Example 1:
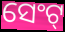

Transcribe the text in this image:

ସେଂଟ୍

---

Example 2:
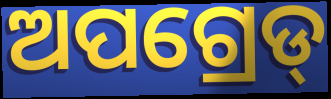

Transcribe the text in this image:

ଅପଗ୍ରେଡ୍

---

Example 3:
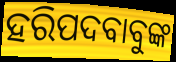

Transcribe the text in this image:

ହରିପଦବାବୁଙ୍କ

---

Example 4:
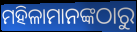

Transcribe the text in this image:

ମହିଳାମାନଙ୍କଠାରୁ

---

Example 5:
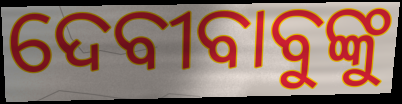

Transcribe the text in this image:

ଦେବୀବାବୁଙ୍କୁ